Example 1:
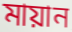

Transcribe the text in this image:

মায়ান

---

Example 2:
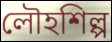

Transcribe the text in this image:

লৌহশিল্প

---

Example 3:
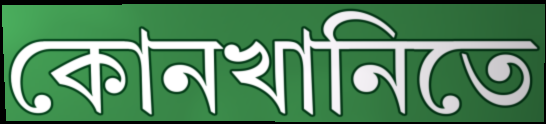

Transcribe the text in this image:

কোনখানিতে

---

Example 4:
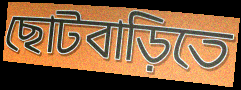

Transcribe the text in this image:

ছোটবাড়িতে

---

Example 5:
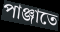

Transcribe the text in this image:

পাঞ্জাতে